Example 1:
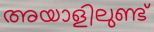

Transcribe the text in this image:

അയാളിലുണ്ട്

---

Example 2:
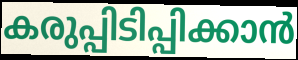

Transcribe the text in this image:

കരുപ്പിടിപ്പിക്കാൻ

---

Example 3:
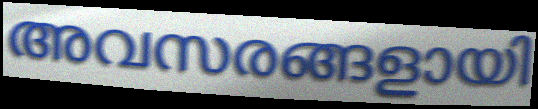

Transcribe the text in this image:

അവസരങ്ങളായി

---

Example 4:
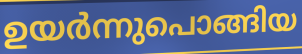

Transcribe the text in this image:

ഉയർന്നുപൊങ്ങിയ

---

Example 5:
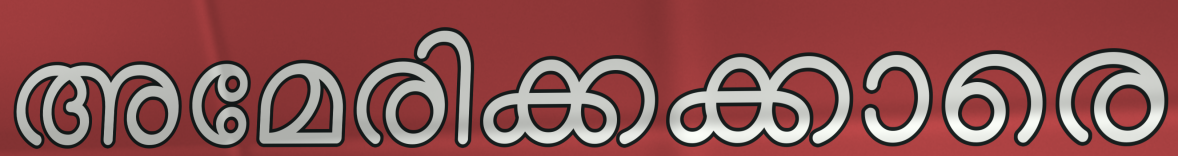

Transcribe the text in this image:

അമേരിക്കക്കാരെ